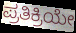
ಪ್ರತಿಕ್ರಿಯೇ